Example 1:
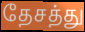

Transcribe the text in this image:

தேசத்து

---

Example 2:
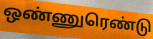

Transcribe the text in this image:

ஒண்ணுரெண்டு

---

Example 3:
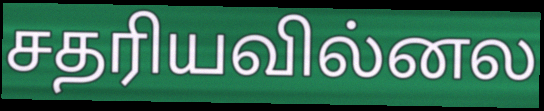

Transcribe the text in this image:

சதரியவில்னல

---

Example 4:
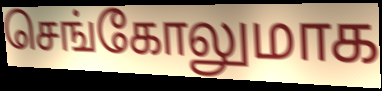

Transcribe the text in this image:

செங்கோலுமாக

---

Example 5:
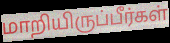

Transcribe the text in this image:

மாறியிருப்பீர்கள்